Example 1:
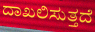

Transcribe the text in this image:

ದಾಖಲಿಸುತ್ತದೆ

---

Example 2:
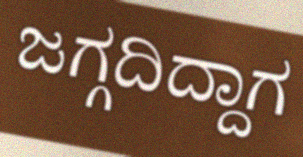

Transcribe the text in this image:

ಜಗ್ಗದಿದ್ದಾಗ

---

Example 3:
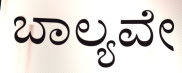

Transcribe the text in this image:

ಬಾಲ್ಯವೇ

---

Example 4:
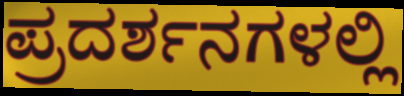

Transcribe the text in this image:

ಪ್ರದರ್ಶನಗಳಲ್ಲಿ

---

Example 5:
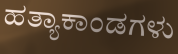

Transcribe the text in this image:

ಹತ್ಯಾಕಾಂಡಗಳು